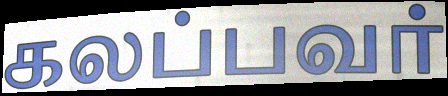
கலப்பவர்